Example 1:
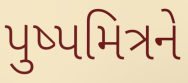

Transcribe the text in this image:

પુષ્પમિત્રને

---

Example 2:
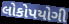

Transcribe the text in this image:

લોકોપયોગી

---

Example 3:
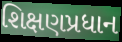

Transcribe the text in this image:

શિક્ષણપ્રધાન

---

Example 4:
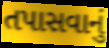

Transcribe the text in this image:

તપાસવાનું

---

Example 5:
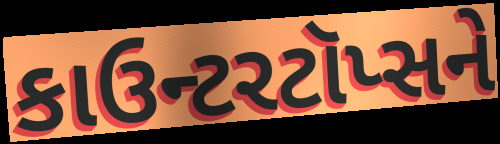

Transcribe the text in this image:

કાઉન્ટરટૉપ્સને